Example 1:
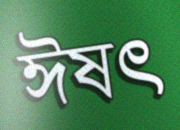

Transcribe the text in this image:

ঈষত্‍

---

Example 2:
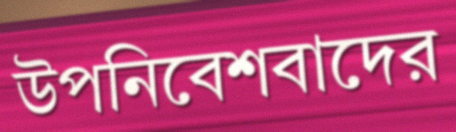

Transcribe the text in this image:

উপনিবেশবাদের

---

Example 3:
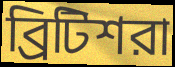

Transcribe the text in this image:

ব্রিটিশরা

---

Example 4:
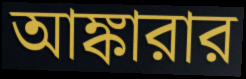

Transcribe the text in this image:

আঙ্কারার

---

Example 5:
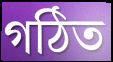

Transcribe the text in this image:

গঠিত